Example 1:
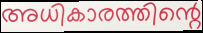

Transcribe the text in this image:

അധികാരത്തിന്റെ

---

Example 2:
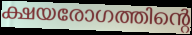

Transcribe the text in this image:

ക്ഷയരോഗത്തിന്റെ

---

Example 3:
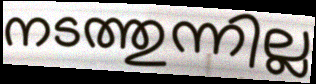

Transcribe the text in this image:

നടത്തുന്നില്ല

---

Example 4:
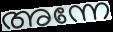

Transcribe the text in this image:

അന്നേ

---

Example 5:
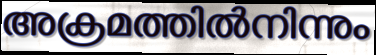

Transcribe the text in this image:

അക്രമത്തിൽനിന്നും